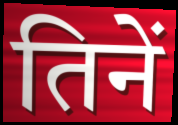
तिनें